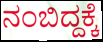
ನಂಬಿದ್ದಕ್ಕೆ